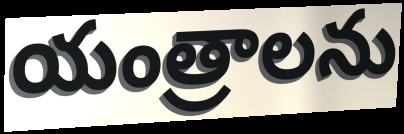
యంత్రాలను